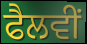
ਫੈਲਵੀਂ